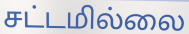
சட்டமில்லை